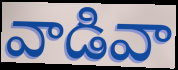
వాడివా